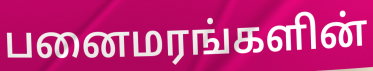
பனைமரங்களின்